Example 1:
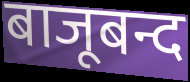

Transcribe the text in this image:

बाजूबन्द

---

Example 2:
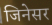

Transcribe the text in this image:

जिनेसर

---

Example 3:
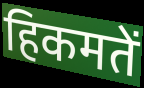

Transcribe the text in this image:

हिकमतें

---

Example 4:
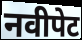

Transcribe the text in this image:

नवीपेट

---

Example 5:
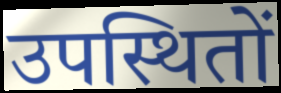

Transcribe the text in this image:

उपस्थितों